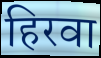
हिरवा